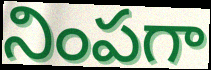
నింపగా